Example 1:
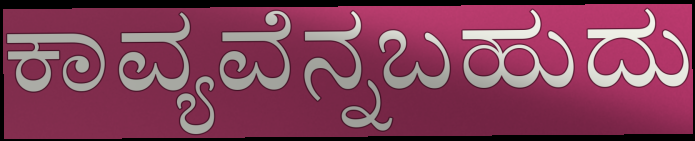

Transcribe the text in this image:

ಕಾವ್ಯವೆನ್ನಬಹುದು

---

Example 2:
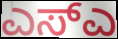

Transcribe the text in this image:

ಎಸ್ಎ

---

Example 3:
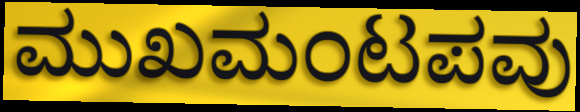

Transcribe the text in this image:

ಮುಖಮಂಟಪವು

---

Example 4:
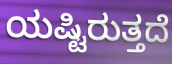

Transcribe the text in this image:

ಯಷ್ಟಿರುತ್ತದೆ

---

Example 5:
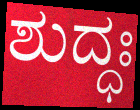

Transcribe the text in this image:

ಶುದ್ಧಃ